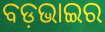
ବଡ଼ଭାଇର